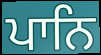
ਪਾਨਿ